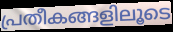
പ്രതീകങ്ങളിലൂടെ